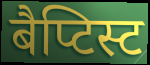
बैप्टिस्ट